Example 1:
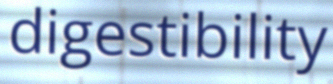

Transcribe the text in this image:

digestibility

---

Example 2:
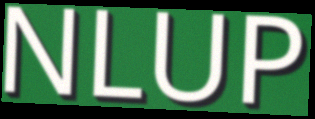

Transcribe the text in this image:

NLUP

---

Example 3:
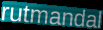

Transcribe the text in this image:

rutmandal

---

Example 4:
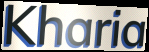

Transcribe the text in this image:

Kharia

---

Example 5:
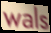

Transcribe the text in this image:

wals